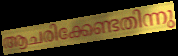
ആചരിക്കേണ്ടതിന്നു